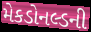
મેકડોનલ્ડની